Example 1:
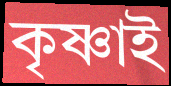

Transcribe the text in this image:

কৃষ্ণাই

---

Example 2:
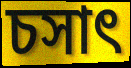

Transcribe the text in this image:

চসাৎ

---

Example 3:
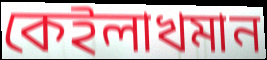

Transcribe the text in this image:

কেইলাখমান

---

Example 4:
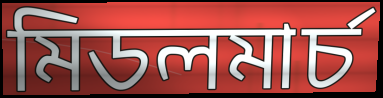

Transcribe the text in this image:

মিডলমাৰ্চ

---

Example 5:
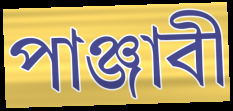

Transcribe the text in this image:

পাঞ্জাবী